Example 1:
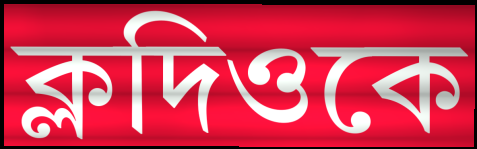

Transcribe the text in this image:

ক্লদিওকে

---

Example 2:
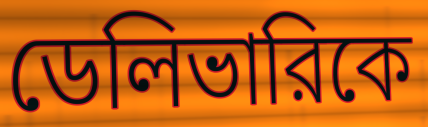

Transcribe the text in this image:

ডেলিভারিকে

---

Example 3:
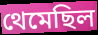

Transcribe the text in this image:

থেমেছিল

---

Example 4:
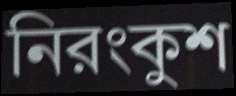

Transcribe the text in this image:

নিরংকুশ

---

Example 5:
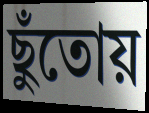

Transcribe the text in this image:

ছুঁতোয়